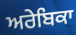
ਅਰੇਬਿਕਾ